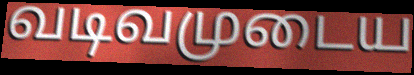
வடிவமுடைய